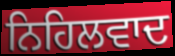
ਨਿਹਿਲਵਾਦ